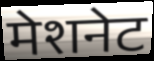
मेशनेट